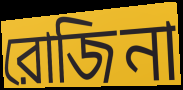
রোজিনা